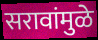
सरावांमुळे